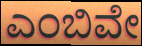
ಎಂಬಿವೇ